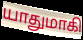
யாதுமாகி